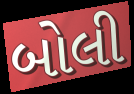
બોલી